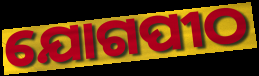
ଯୋଗପୀଠ